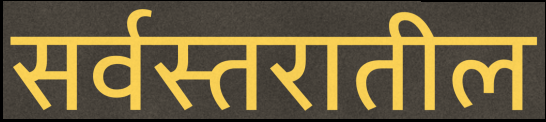
सर्वस्तरातील